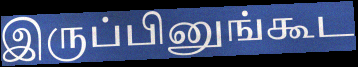
இருப்பினுங்கூட